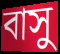
বাসু